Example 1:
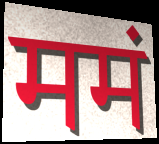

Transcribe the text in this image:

ममं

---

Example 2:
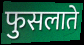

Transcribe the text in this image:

फुसलाते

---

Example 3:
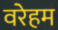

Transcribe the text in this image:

वरेहम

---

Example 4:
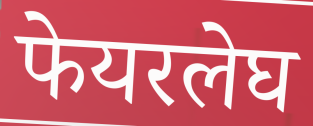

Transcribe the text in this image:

फेयरलेघ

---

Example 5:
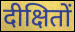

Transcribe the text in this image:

दीक्षितों